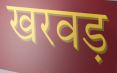
खरवड़